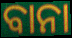
ବାନା